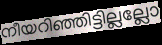
നീയറിഞ്ഞിട്ടില്ലല്ലോ